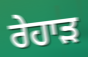
ਰੇਹਾੜ